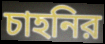
চাহনির